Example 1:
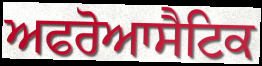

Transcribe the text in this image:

ਅਫਰੋਆਸੈਟਿਕ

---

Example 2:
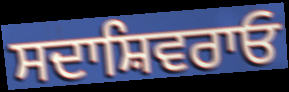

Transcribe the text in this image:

ਸਦਾਸ਼ਿਵਰਾਓ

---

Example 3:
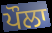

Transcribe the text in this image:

ਪੌਲਾ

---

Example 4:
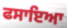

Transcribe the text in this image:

ਫਸਾਇਆ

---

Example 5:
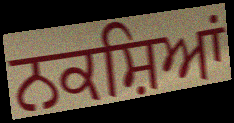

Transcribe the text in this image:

ਨਕਸ਼ਿਆਂ